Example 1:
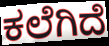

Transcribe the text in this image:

ಕಲೆಗಿದೆ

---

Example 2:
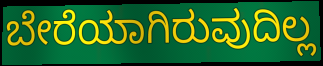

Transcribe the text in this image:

ಬೇರೆಯಾಗಿರುವುದಿಲ್ಲ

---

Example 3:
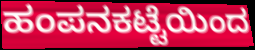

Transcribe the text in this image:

ಹಂಪನಕಟ್ಟೆಯಿಂದ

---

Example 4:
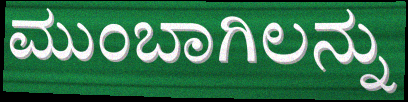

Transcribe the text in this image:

ಮುಂಬಾಗಿಲನ್ನು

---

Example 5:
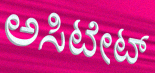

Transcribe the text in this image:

ಅಸಿಟೇಟ್